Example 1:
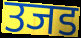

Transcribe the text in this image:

उजड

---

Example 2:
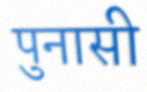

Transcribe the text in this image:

पुनासी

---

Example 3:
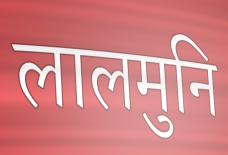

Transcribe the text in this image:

लालमुनि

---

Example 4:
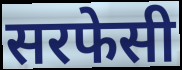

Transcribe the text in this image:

सरफेसी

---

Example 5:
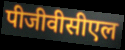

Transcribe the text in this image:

पीजीवीसीएल